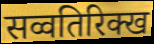
सव्वतिरिक्ख